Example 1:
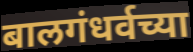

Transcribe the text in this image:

बालगंधर्वच्या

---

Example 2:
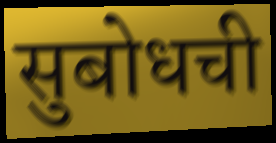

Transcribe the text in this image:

सुबोधची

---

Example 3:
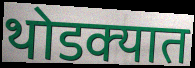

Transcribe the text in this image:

थोडक्‍यात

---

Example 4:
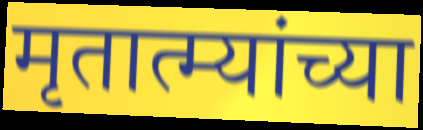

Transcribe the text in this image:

मृतात्म्यांच्या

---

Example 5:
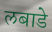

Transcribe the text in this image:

लबाडे